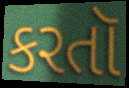
કરતૉ